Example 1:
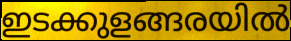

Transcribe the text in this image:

ഇടക്കുളങ്ങരയിൽ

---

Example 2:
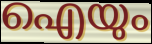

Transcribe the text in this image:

ഐയും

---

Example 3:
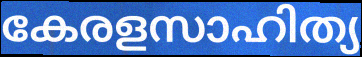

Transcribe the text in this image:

കേരളസാഹിത്യ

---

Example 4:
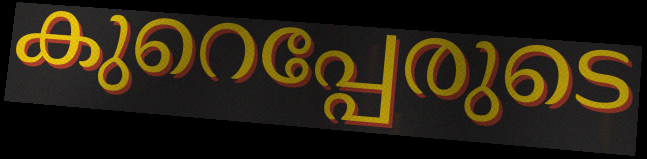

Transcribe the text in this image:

കുറെപ്പേരുടെ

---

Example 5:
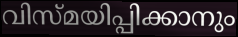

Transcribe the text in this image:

വിസ്മയിപ്പിക്കാനും